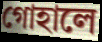
গোহালে